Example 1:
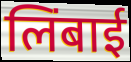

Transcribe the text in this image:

लिंबाई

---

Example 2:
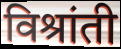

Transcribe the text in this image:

विश्रांती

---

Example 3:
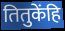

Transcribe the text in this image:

तितुकेंहि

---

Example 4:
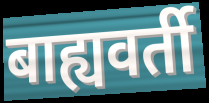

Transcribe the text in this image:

बाह्यवर्ती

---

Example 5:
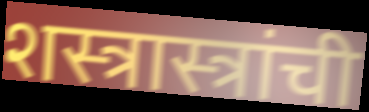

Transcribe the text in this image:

शस्त्रास्त्रांची